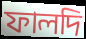
ফালদি